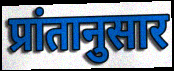
प्रांतानुसार